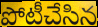
పోటీచేసిన